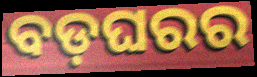
ବଡ଼ଘରର